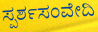
ಸ್ಪರ್ಶಸಂವೇದಿ